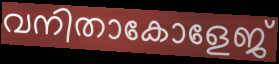
വനിതാകോളേജ്